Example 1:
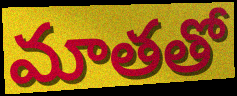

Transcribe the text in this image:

మాతతో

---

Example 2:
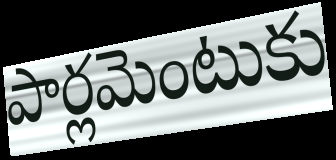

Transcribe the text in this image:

పార్లమెంటుకు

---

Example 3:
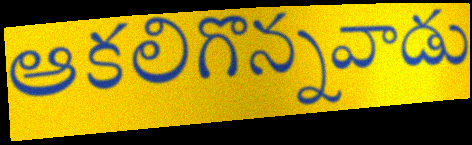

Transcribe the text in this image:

ఆకలిగొన్నవాడు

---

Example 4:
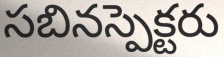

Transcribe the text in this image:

సబినస్పెక్టరు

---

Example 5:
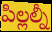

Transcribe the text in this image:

పిల్లల్నీ